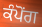
ਕੰਪੋਂਗ